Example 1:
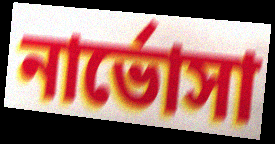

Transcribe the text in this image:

নার্ভোসা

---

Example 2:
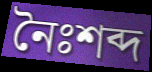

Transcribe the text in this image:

নৈঃশব্দ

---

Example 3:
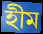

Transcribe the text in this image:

হীম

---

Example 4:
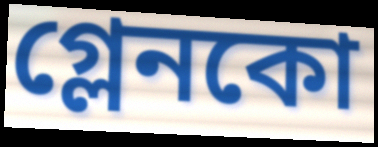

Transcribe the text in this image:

গ্লেনকো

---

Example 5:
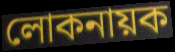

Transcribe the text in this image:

লোকনায়ক